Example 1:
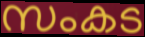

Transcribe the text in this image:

സംകട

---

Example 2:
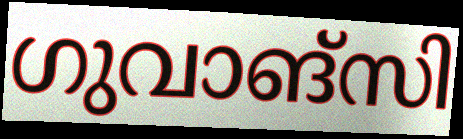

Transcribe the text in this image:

ഗുവാങ്സി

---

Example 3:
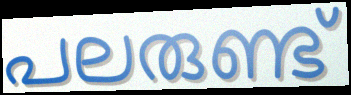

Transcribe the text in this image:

പലരുണ്ട്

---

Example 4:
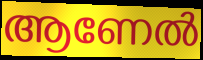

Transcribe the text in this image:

ആണേൽ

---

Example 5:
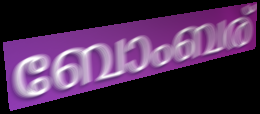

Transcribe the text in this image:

ബോംബര്